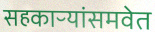
सहकाऱ्यांसमवेत